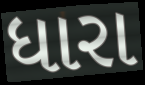
ધારા